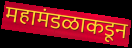
महामंडळाकडून